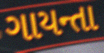
ગાયન્તા